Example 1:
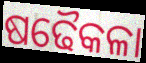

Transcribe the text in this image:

ଷଢୈକଳା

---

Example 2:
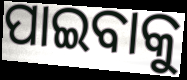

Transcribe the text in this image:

ପାଇବାକୁ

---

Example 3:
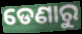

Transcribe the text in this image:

ଡେଣାରୁ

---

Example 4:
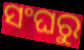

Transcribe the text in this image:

ସଂଘରୁ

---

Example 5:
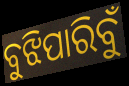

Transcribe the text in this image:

ବୁଝିପାରିବୁଁ